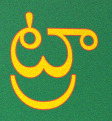
ట్రా